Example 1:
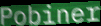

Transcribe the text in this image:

Pobiner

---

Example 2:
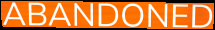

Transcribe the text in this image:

ABANDONED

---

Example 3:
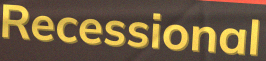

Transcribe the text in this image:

Recessional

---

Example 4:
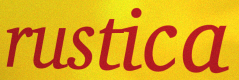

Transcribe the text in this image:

rustica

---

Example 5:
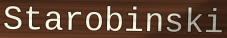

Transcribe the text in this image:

Starobinski